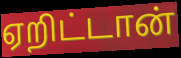
ஏறிட்டான்